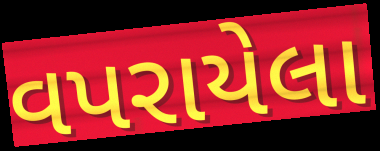
વપરાયેલા